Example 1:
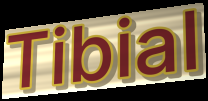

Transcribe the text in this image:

Tibial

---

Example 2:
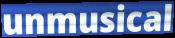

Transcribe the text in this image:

unmusical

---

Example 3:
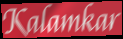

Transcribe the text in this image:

Kalamkar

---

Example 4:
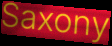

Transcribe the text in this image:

Saxony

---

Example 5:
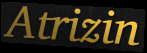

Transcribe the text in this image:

Atrizin